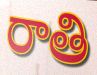
రాతి